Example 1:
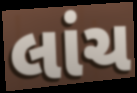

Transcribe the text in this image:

લાંચ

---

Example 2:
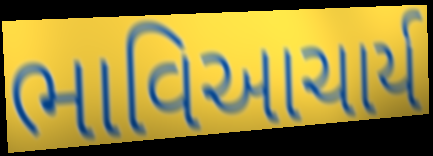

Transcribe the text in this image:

ભાવિઆચાર્ય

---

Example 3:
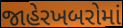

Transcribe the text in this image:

જાહેરખબરોમાં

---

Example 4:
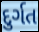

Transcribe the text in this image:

દુર્ગત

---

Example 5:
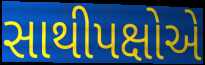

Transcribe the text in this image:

સાથીપક્ષોએ